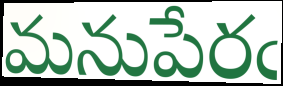
మనుపేరఁ